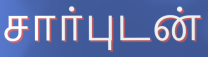
சார்புடன்